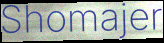
Shomajer